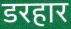
डरहार